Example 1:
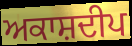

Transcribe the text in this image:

ਅਕਾਸ਼ਦੀਪ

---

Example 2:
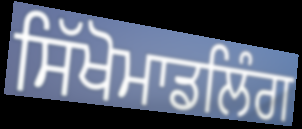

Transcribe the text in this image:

ਸਿੱਖੋਮਾਡਲਿੰਗ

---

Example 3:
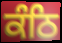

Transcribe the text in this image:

ਕੰਠਿ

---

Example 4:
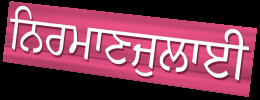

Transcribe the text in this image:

ਨਿਰਮਾਣਜੁਲਾਈ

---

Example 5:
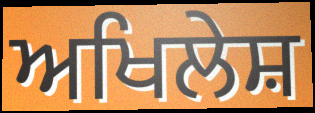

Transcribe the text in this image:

ਅਖਿਲੇਸ਼